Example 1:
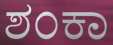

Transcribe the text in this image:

ಶಂಕಾ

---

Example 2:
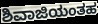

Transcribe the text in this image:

ಶಿವಾಜಿಯಂತಹ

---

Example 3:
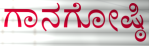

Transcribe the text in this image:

ಗಾನಗೋಷ್ಠಿ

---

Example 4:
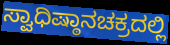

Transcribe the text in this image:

ಸ್ವಾಧಿಷ್ಠಾನಚಕ್ರದಲ್ಲಿ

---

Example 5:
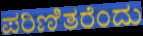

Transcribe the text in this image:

ಪರಿಣಿತರೆಂದು